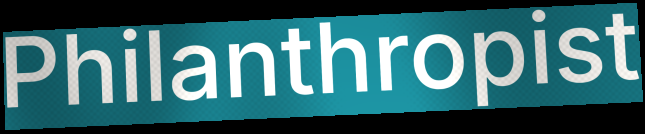
Philanthropist